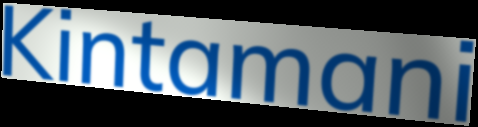
Kintamani